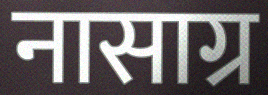
नासाग्र